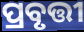
ପ୍ରବୃତ୍ତୀ